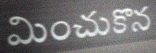
మించుకొన